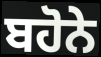
ਬਹੋਨੇ